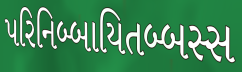
પરિનિબ્બાયિતબ્બસ્સ